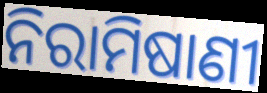
ନିରାମିଷାଣୀ